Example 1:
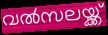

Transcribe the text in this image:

വൽസലയ്ക്ക്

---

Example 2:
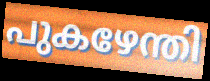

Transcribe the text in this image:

പുകഴേന്തി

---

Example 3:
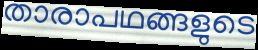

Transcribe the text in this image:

താരാപഥങ്ങളുടെ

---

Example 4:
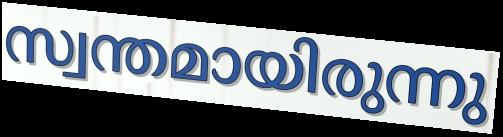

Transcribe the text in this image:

സ്വന്തമായിരുന്നു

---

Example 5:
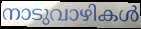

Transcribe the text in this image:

നാടുവാഴികൾ